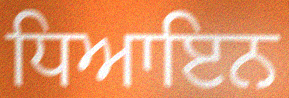
ਧਿਆਇਨ